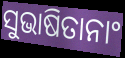
ସୁଭାଷିତାନାଂ